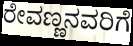
ರೇವಣ್ಣನವರಿಗೆ